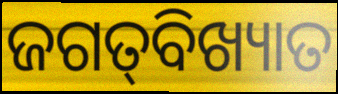
ଜଗତ୍‌ବିଖ୍ୟାତ